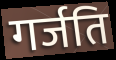
गर्जति